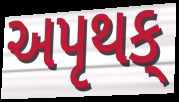
અપૃથક્